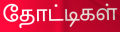
தோட்டிகள்